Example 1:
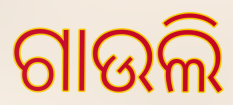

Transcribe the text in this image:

ଗାଉଲି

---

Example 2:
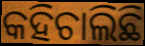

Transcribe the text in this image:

କହିଚାଲିଛି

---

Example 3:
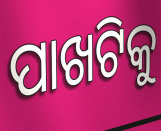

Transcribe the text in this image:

ପାଖଟିକୁ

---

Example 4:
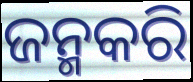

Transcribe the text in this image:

ଜନ୍ମକରି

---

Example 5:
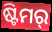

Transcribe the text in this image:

ଷ୍ଟିମର୍